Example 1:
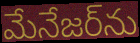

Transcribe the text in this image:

మేనేజర్‌ను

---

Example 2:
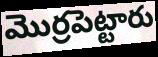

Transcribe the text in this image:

మొర్రపెట్టారు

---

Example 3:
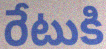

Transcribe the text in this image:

రేటుకి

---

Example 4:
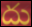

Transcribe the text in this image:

దు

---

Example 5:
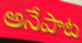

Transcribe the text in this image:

అనేపాట